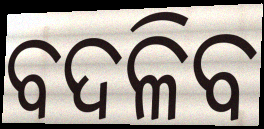
ବଦଳିବ